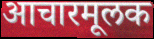
आचारमूलक